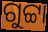
ଗୁଟ୍ଟା